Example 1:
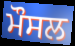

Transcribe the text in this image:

ਮੌਸਲ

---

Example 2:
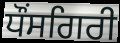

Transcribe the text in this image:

ਧੌਂਸਗਿਰੀ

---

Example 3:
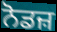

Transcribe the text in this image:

ਨੋਡਜ਼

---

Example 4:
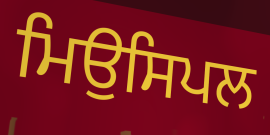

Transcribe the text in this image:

ਮਿਉਸਿਪਲ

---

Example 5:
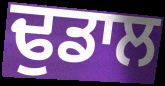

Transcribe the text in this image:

ਢੁਡਾਲ